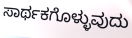
ಸಾರ್ಥಕಗೊಳ್ಳುವುದು